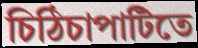
চিঠিচাপাটিতে